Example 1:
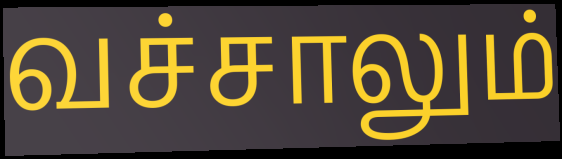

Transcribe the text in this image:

வச்சாலும்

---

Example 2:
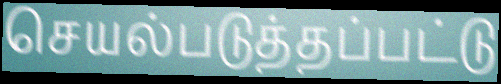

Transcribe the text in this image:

செயல்படுத்தப்பட்டு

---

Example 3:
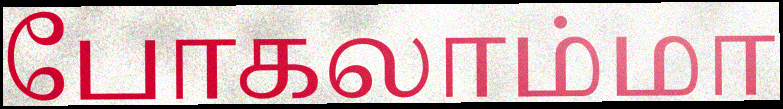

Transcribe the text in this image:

போகலாம்மா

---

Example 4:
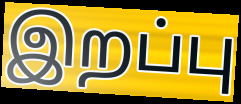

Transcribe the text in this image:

இறப்பு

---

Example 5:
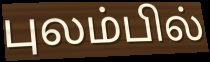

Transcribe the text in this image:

புலம்பில்